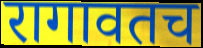
रागावतच